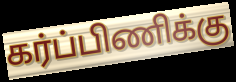
கர்ப்பிணிக்கு